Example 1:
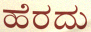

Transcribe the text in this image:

ಹೆರದು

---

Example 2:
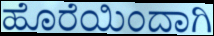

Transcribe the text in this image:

ಹೊರೆಯಿಂದಾಗಿ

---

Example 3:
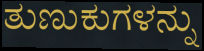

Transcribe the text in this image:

ತುಣುಕುಗಳನ್ನು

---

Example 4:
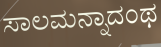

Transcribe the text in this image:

ಸಾಲಮನ್ನಾದಂಥ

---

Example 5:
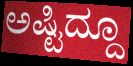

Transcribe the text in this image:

ಅಷ್ಟಿದ್ದೂ